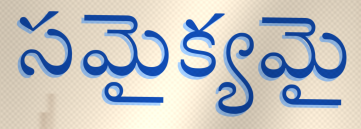
సమైక్యమై